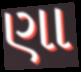
ણા